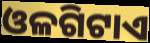
ଓଳଗିଟାଏ